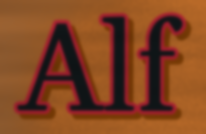
Alf